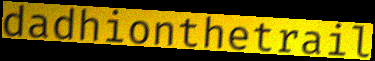
dadhionthetrail